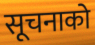
सूचनाको